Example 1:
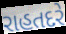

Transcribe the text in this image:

રાહતદરે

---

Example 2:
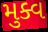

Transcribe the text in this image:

મુક્વ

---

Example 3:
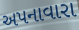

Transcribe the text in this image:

અપનાવારા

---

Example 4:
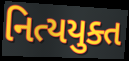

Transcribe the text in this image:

નિત્યયુક્ત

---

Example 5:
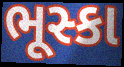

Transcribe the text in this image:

ભૂસ્કા